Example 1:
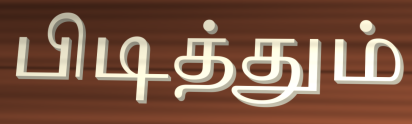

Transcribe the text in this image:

பிடித்தும்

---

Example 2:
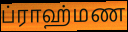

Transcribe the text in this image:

ப்ராஹ்மண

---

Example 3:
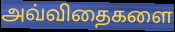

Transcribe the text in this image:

அவ்விதைகளை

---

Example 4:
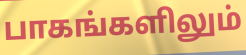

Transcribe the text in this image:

பாகங்களிலும்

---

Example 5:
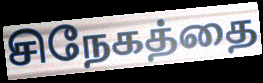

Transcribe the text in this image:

சிநேகத்தை